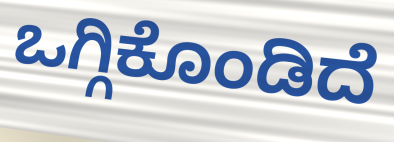
ಒಗ್ಗಿಕೊಂಡಿದೆ